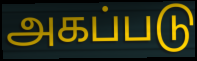
அகப்படு